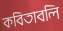
কবিতাবলি